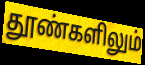
தூண்களிலும்